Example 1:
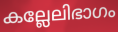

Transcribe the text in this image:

കല്ലേലിഭാഗം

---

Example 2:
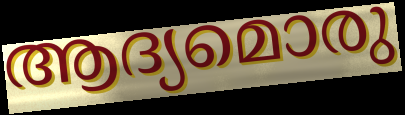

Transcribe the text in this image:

ആദ്യമൊരു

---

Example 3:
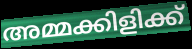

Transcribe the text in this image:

അമ്മക്കിളിക്ക്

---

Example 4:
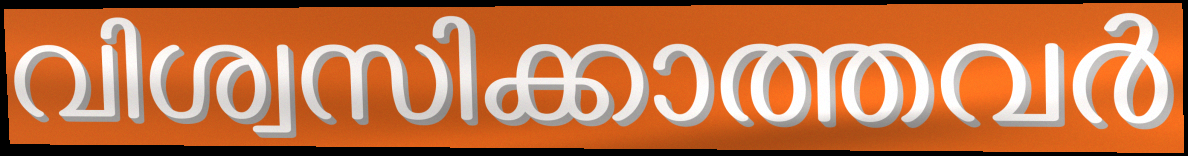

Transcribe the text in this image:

വിശ്വസിക്കാത്തവർ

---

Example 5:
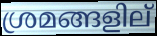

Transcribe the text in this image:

ശ്രമങ്ങളില്